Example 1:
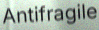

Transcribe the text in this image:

Antifragile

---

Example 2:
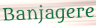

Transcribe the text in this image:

Banjagere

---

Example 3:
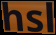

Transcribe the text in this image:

hsl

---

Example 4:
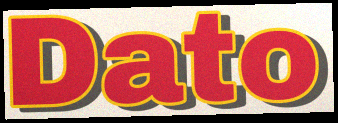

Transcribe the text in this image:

Dato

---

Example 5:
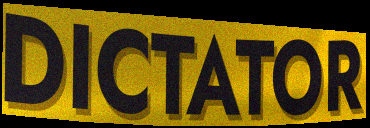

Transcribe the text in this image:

DICTATOR